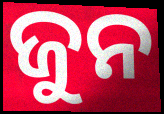
ଜୁନ